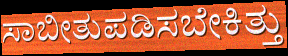
ಸಾಬೀತುಪಡಿಸಬೇಕಿತ್ತು